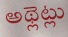
అథ్లెట్లు